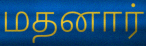
மதனார்